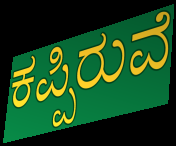
ಕಪ್ಪಿರುವೆ